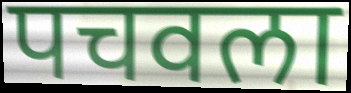
पचवला